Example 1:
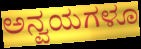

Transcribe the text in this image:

ಅನ್ವಯಗಳೂ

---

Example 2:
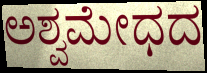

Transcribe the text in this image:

ಅಶ್ವಮೇಧದ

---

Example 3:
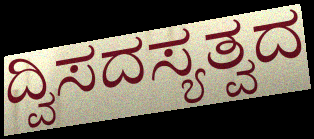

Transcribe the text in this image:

ದ್ವಿಸದಸ್ಯತ್ವದ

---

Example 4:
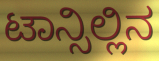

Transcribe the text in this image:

ಟಾನ್ಸಿಲ್ಲಿನ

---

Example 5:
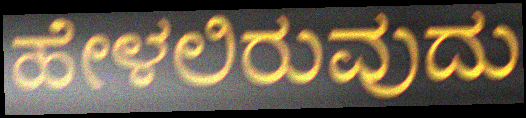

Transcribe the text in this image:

ಹೇಳಲಿರುವುದು